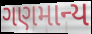
ગણમાન્ય